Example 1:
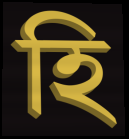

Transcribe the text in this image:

হি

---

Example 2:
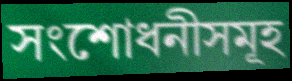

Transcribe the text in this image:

সংশোধনীসমূহ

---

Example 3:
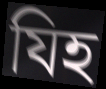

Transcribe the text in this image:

যিহ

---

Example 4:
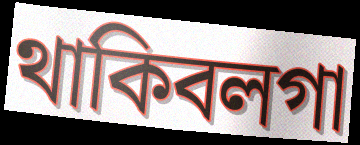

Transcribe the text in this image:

থাকিবলগা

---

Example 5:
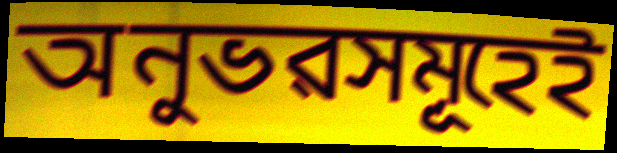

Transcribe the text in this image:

অনুভৱসমূহেই